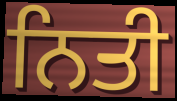
ਨਿਤੀ